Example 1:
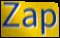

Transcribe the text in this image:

Zap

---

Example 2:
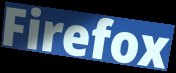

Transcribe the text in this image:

Firefox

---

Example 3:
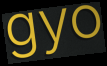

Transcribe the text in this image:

gyo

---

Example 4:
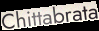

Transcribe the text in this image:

Chittabrata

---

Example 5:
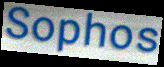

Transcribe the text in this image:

Sophos